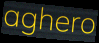
aghero